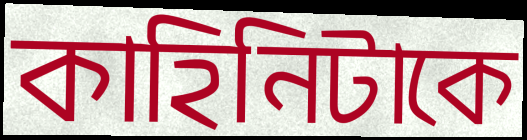
কাহিনিটাকে